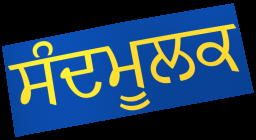
ਸੰਦਮੂਲਕ